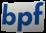
bpf